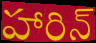
హారిన్